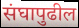
संघापुढील